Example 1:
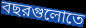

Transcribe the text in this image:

বছরগুলোতে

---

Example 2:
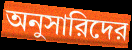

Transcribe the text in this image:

অনুসারিদের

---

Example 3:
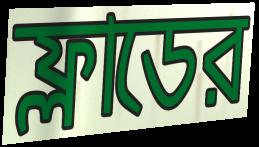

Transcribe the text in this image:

ফ্লাডের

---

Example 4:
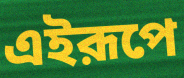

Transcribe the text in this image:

এইরূপে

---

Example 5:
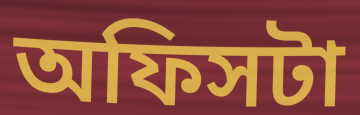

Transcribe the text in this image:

অফিসটা